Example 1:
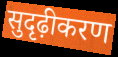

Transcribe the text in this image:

सुदृढ़ीकरण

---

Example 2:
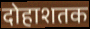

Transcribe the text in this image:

दोहाशतक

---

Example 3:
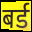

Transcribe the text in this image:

बर्ड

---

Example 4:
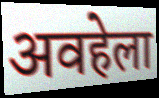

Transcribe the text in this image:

अवहेला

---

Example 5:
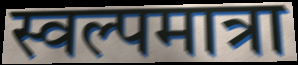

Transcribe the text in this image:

स्वल्पमात्रा